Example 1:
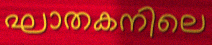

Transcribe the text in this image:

ഘാതകനിലെ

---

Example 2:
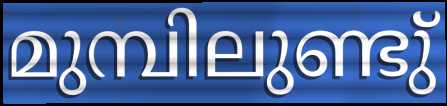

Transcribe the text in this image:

മുമ്പിലുണ്ടു്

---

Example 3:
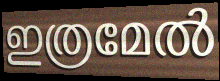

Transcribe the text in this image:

ഇത്രമേൽ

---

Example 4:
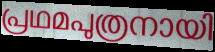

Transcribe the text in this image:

പ്രഥമപുത്രനായി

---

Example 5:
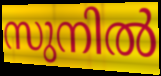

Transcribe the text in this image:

സുനിൽ